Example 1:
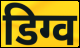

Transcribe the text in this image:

डिग्व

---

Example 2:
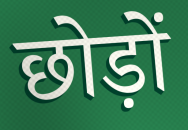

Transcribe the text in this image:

छोड़ों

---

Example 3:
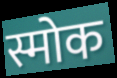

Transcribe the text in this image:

स्मोक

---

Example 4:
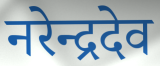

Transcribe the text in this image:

नरेन्द्रदेव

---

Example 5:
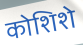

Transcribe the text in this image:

कोशिशे